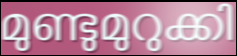
മുണ്ടുമുറുക്കി